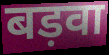
बड़वा